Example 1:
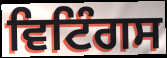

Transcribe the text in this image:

ਵਿਟਿੰਗਸ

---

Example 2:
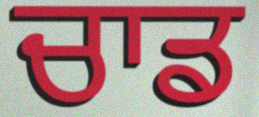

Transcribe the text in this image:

ਚਾਡ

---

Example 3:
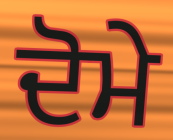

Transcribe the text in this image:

ਦੋਮੇ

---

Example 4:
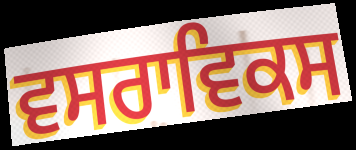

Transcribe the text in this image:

ਵਸਰਾਵਿਕਸ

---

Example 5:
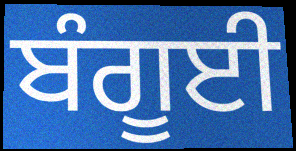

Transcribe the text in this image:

ਬੰਗੂਈ